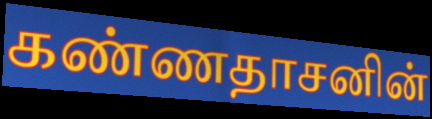
கண்ணதாசனின்